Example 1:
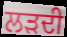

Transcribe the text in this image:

ਲੜਦੀ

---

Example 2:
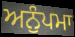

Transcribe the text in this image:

ਅਨੁੰਪਮਾ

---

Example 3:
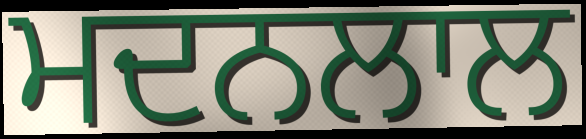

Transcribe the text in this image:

ਮਦਨਲਾਲ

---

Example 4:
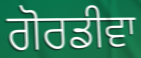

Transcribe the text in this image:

ਗੋਰਡੀਵਾ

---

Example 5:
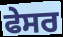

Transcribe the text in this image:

ਫੇਸਰ